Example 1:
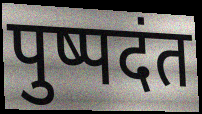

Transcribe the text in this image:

पुष्पदंत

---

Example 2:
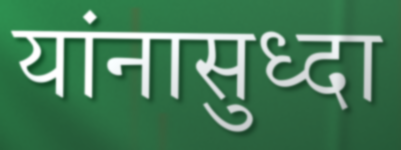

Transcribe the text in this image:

यांनासुध्दा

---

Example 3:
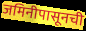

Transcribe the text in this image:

जमिनीपासूनची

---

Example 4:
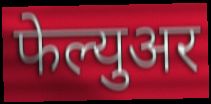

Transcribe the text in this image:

फेल्युअर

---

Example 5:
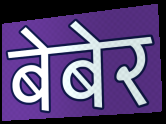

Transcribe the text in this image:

बेबेर